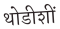
थोडीशीं